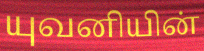
யுவனியின்